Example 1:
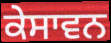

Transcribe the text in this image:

ਕੇਸਾਵਨ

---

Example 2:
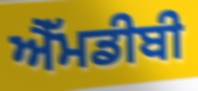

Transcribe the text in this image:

ਐੱਮਡੀਬੀ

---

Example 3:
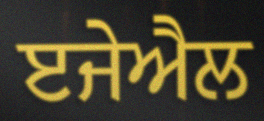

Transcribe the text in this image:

ੲਜੇਐਲ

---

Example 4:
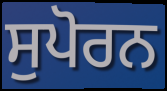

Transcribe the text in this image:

ਸੁਪੋਰਨ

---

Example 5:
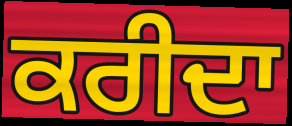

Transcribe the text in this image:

ਕਰੀਦਾ